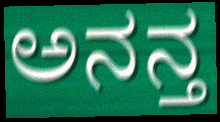
ಅನನ್ತ